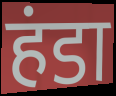
हंडा